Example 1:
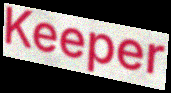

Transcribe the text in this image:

Keeper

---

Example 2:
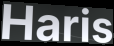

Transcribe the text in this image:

Haris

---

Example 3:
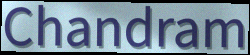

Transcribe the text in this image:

Chandram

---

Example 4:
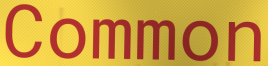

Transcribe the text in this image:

Common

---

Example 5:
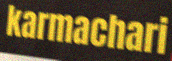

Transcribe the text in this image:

karmachari